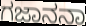
ಗಜಾನನಾ